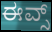
ಈವ್ಸ್